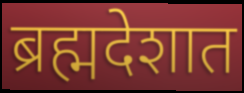
ब्रह्मदेशात